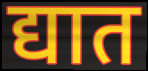
द्यात